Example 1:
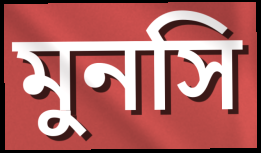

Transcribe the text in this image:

মুনসি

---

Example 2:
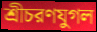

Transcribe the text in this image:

শ্রীচরণযুগল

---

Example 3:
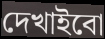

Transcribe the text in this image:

দেখাইবো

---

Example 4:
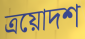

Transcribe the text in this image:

ত্রয়োদশ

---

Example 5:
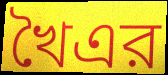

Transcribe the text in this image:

খৈএর